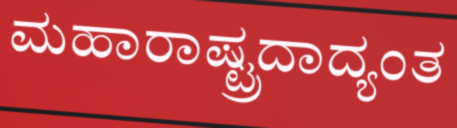
ಮಹಾರಾಷ್ಟ್ರದಾದ್ಯಂತ